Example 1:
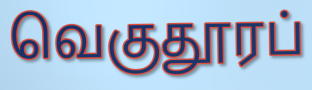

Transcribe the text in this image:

வெகுதூரப்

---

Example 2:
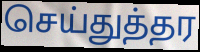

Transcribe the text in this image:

செய்துத்தர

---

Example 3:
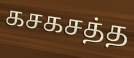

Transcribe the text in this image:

கசகசத்த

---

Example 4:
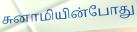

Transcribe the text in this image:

சுனாமியின்போது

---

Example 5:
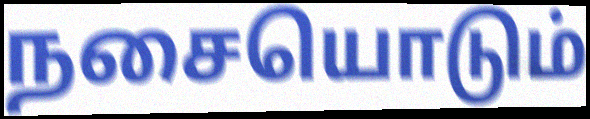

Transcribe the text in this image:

நசையொடும்